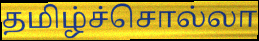
தமிழ்ச்சொல்லா